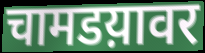
चामडय़ावर